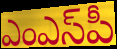
ఎంఎస్‌పీ